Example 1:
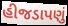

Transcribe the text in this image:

હીજડાપણું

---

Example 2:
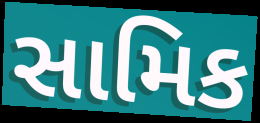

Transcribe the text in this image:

સામિક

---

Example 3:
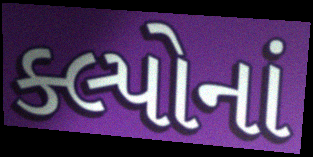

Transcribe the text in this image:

ક્લ્પોનાં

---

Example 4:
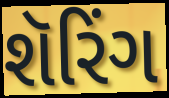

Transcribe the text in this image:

શૅરિંગ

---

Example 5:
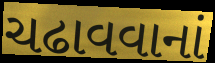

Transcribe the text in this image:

ચઢાવવાનાં